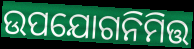
ଉପଯୋଗନିମିତ୍ତ